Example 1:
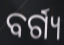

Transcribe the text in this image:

ବର୍ଗ୍ୟ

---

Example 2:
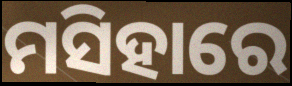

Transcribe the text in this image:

ମସିହାରେ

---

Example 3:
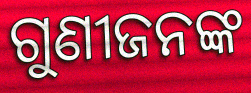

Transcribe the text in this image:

ଗୁଣୀଜନଙ୍କ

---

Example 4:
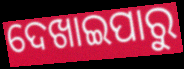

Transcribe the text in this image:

ଦେଖାଇପାରୁ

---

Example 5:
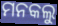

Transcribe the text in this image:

ମନକଲୁ